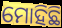
ମୋହିଛି